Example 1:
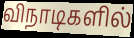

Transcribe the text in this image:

விநாடிகளில்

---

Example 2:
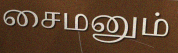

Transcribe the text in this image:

சைமனும்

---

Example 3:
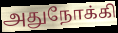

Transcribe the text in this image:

அதுநோக்கி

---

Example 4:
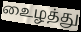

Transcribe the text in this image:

உைழத்து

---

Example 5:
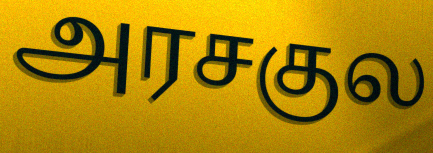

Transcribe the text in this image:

அரசகுல